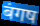
बंगष